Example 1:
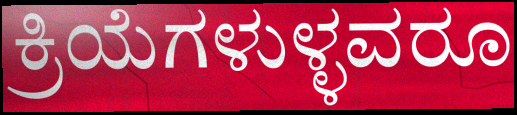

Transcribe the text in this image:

ಕ್ರಿಯೆಗಳುಳ್ಳವರೂ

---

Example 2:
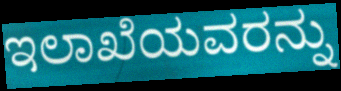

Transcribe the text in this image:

ಇಲಾಖೆಯವರನ್ನು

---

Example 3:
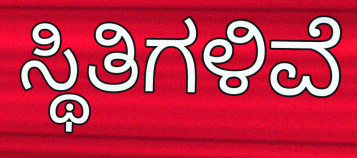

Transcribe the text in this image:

ಸ್ಥಿತಿಗಳಿವೆ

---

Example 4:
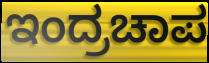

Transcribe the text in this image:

ಇಂದ್ರಚಾಪ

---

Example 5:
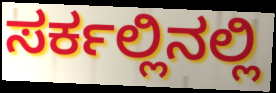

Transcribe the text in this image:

ಸರ್ಕಲ್ಲಿನಲ್ಲಿ